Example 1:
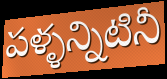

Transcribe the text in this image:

పళ్ళన్నిటినీ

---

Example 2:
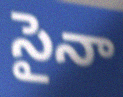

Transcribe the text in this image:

సైనా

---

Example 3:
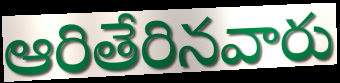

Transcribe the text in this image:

ఆరితేరినవారు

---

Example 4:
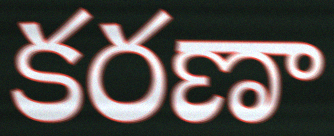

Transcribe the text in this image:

కరణా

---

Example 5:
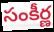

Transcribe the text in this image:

సంకీర్ణ